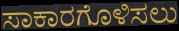
ಸಾಕಾರಗೊಳಿಸಲು